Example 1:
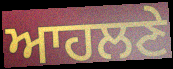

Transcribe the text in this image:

ਆਹਲਣੇ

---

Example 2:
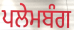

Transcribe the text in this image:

ਪਲੇਮਬੰਗ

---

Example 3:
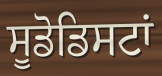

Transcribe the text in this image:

ਸੂਡੋਡਿਸਟਾਂ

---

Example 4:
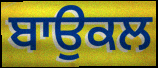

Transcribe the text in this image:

ਬਾਉਕਲ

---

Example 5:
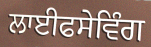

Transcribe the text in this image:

ਲਾਈਫਸੇਵਿੰਗ